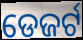
ଡେଜର୍ଟ